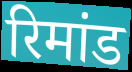
रिमांड